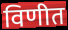
विणीत